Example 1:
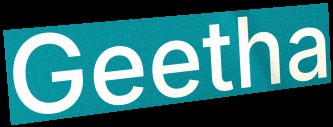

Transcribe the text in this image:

Geetha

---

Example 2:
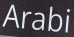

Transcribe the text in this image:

Arabi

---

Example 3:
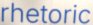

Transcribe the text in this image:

rhetoric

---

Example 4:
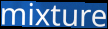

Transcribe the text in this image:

mixture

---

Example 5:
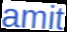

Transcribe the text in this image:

amit